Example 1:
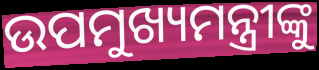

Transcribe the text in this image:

ଉପମୁଖ୍ୟମନ୍ତ୍ରୀଙ୍କୁ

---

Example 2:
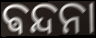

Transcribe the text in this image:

ଵନ୍ଦନା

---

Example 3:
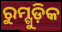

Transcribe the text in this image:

ରୁମ୍ଗୁଡ଼ିକ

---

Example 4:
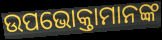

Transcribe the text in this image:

ଉପଭୋକ୍ତାମାନଙ୍କ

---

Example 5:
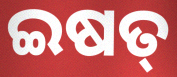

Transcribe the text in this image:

ଇଷତ୍